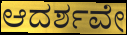
ಆದರ್ಶವೇ